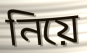
নিয়ে